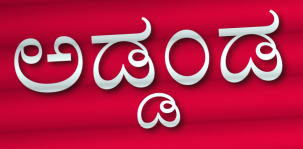
ಅಡ್ಡಂಡ